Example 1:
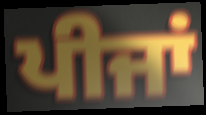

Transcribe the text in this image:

ਪੀਜਾਂ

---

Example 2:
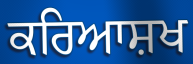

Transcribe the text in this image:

ਕਰਿਆਸ਼ਖ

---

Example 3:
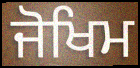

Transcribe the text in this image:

ਜੋਖਿਮ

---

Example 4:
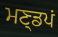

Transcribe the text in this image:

ਮਣ੍ਡਪਂ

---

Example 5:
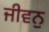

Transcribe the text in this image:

ਜੀਵਨੁ